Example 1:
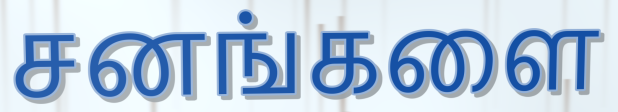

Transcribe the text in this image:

சனங்களை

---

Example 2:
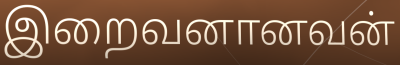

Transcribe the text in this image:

இறைவனானவன்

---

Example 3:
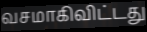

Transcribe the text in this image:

வசமாகிவிட்டது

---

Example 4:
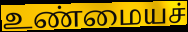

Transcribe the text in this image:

உண்மையச்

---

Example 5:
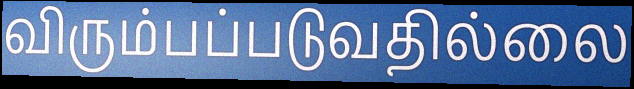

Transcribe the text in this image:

விரும்பப்படுவதில்லை